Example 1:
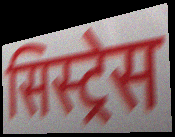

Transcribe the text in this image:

सिस्ट्रेस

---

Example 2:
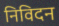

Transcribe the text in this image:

निविदन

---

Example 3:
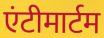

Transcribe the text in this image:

एंटीमार्टम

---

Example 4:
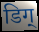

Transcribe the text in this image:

डिग्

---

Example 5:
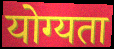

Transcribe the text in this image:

योग्यता